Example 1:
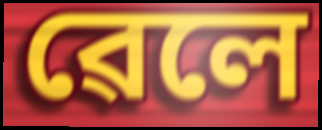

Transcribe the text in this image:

ৱেলে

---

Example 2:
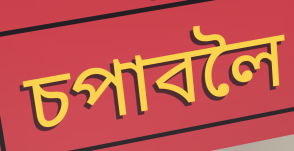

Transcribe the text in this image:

চপাবলৈ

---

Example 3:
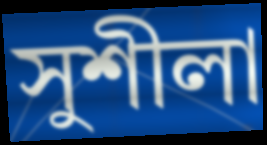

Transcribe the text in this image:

সুশীলা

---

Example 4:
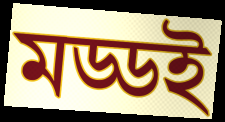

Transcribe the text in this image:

মড্ডই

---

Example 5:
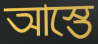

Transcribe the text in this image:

আস্তে